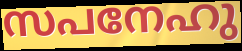
സപനേഹു